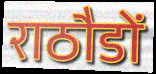
राठौडों